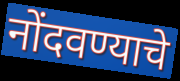
नोंदवण्याचे